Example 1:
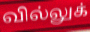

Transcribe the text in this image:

வில்லுக்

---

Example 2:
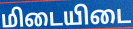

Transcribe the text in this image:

மிடையிடை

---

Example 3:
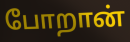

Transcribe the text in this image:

போறான்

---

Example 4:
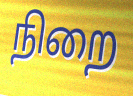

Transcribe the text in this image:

நிறை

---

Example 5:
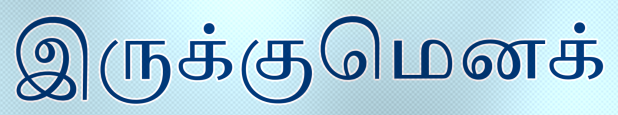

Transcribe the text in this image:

இருக்குமெனக்